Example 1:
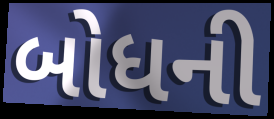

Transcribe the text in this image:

બોધની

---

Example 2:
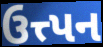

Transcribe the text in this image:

ઉત્ત્પન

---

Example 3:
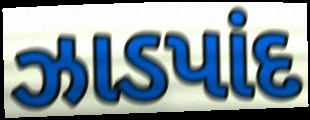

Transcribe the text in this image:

ઝાડપાંદ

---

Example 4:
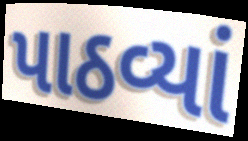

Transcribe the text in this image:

પાઠવ્યાં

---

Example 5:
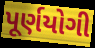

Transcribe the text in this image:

પૂર્ણયોગી